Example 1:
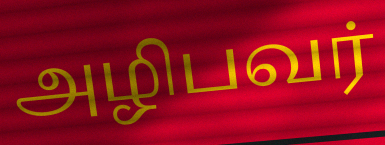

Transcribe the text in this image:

அழிபவர்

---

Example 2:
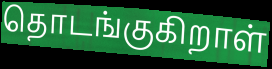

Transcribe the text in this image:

தொடங்குகிறாள்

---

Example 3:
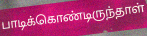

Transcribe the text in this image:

பாடிக்கொண்டிருந்தாள்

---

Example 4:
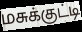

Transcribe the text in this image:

மசுக்குட்டி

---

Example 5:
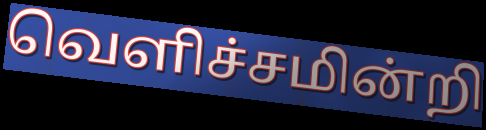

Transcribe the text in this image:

வெளிச்சமின்றி